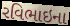
રવિભાઇના